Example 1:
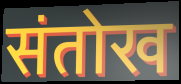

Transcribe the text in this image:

संतोख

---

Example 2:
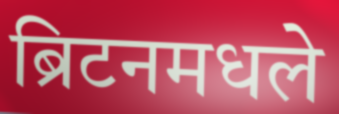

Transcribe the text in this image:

ब्रिटनमधले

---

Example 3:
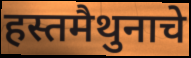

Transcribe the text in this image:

हस्तमैथुनाचे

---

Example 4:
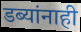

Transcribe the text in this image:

डब्यांनाही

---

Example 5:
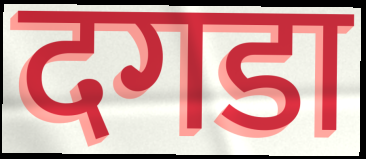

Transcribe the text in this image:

दगडा